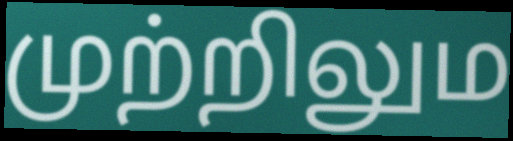
முற்றிலும